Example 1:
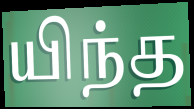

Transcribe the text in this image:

யிந்த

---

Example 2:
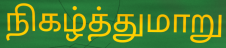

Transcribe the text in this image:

நிகழ்த்துமாறு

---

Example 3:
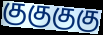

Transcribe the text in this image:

குகுகுகு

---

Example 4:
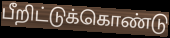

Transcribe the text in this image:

பீறிட்டுக்கொண்டு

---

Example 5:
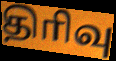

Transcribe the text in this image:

திரிவு